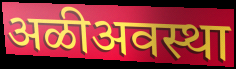
अळीअवस्था